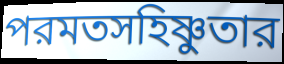
পরমতসহিষ্ণুতার